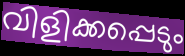
വിളിക്കപ്പെടും